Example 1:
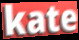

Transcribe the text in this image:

kate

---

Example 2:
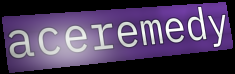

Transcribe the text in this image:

aceremedy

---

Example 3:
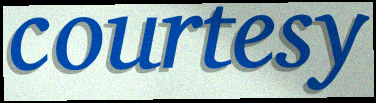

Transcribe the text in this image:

courtesy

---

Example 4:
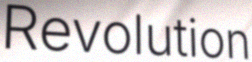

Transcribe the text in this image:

Revolution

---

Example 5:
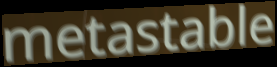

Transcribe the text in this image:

metastable